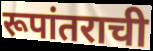
रूपांतराची